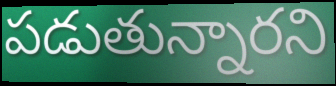
పడుతున్నారని